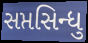
સપ્તસિન્ધુ